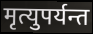
मृत्युपर्यन्त